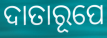
ଦାତାରୂପେ